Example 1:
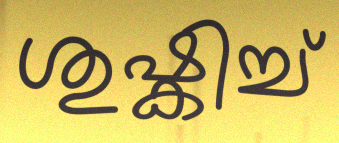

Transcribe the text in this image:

ശുഷ്കിച്ച്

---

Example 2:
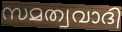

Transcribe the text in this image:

സമത്വവാദി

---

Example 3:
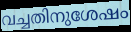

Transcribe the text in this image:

വച്ചതിനുശേഷം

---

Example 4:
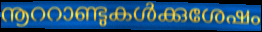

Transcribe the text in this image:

നൂററാണ്ടുകൾക്കുശേഷം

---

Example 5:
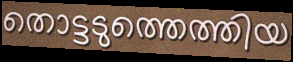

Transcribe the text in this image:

തൊട്ടടുത്തെത്തിയ